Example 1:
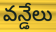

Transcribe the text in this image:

వన్డేలు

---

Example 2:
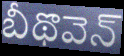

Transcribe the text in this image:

బీథొవెన్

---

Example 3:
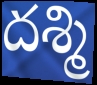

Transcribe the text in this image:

దశ్మి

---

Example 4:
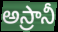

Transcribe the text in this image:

అస్రానీ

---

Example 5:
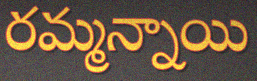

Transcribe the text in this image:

రమ్మన్నాయి